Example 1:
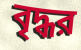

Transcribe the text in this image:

বৃদ্ধর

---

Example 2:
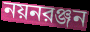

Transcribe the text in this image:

নয়নরঞ্জন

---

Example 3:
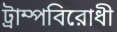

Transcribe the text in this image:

ট্রাম্পবিরোধী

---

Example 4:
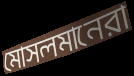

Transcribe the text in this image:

মোসলমানেরা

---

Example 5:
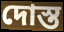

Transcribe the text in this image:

দোস্ত